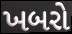
ખબરો